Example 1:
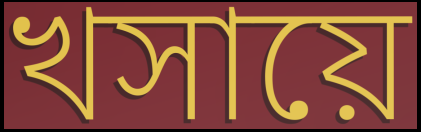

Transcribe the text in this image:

খসায়ে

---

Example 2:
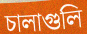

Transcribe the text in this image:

চালাগুলি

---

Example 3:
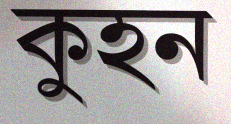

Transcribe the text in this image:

কুহন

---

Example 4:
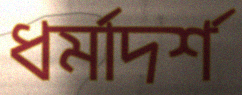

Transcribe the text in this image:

ধর্মাদর্শ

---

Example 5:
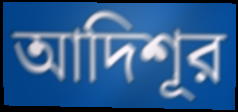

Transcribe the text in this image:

আদিশূর